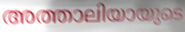
അത്താലിയായുടെ